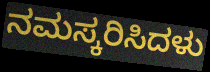
ನಮಸ್ಕರಿಸಿದಳು